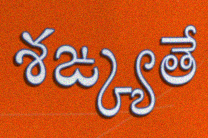
శఙ్క్యతే